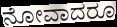
ನೋವಾದರೂ